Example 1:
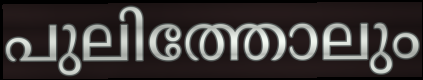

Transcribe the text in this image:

പുലിത്തോലും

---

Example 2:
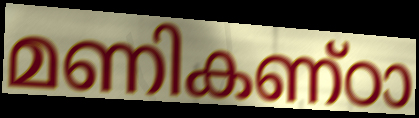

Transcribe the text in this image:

മണികണ്ഠാ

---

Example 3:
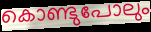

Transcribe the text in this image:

കൊണ്ടുപോലും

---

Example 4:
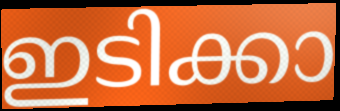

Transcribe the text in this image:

ഇടിക്കാ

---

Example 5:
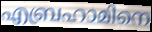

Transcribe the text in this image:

എബ്രഹാമിനെ